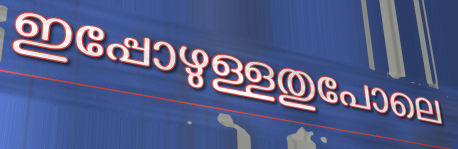
ഇപ്പോഴുള്ളതുപോലെ